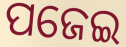
ପଜେଇ